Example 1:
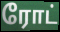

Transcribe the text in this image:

ரோட்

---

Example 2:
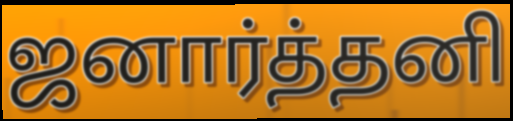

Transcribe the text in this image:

ஜனார்த்தனி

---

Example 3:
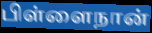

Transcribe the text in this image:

பிள்ளைநான்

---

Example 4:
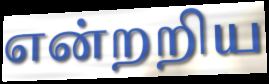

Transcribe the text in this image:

என்றறிய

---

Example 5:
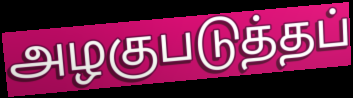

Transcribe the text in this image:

அழகுபடுத்தப்